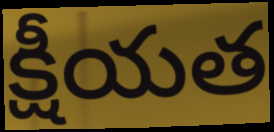
క్షీయత